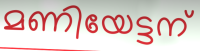
മണിയേട്ടന്